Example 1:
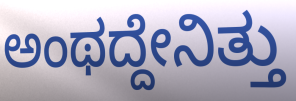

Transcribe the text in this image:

ಅಂಥದ್ದೇನಿತ್ತು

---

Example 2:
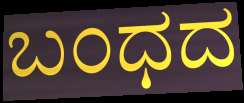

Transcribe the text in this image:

ಬಂಧದ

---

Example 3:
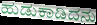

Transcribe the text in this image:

ಹುಡುಕಾಡಿದನು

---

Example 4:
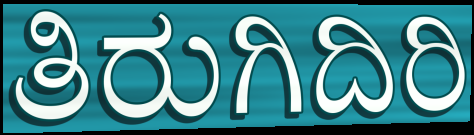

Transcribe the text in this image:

ತಿರುಗಿದಿರಿ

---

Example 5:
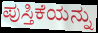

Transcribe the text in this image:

ಪುಸ್ತಿಕೆಯನ್ನು